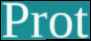
Prot